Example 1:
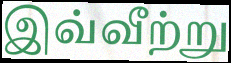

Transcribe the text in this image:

இவ்வீற்று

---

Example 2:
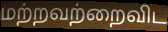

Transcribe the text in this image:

மற்றவற்றைவிட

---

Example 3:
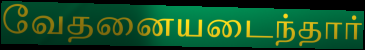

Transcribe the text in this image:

வேதனையடைந்தார்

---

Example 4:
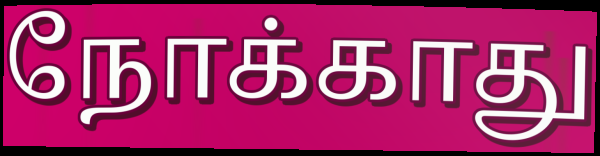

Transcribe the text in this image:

நோக்காது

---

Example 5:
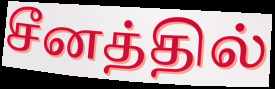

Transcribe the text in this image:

சீனத்தில்